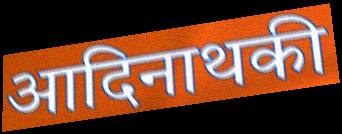
आदिनाथकी